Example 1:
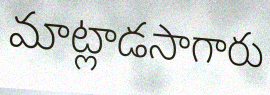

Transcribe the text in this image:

మాట్లాడసాగారు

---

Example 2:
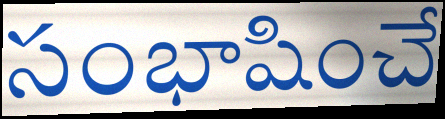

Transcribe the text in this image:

సంభాషించే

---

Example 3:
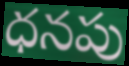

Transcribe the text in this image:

ధనపు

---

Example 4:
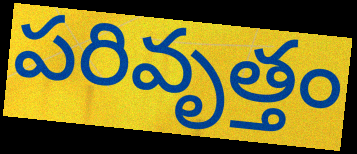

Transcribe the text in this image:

పరివృత్తం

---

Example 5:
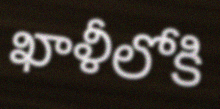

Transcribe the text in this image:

ఖాళీలోకి